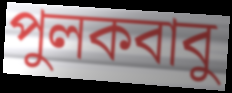
পুলকবাবু